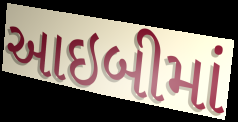
આઇબીમાં